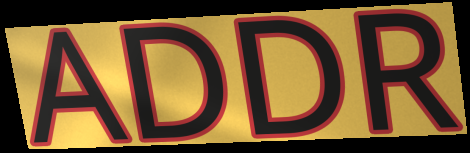
ADDR